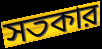
সতকার